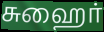
சுஹைர்